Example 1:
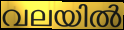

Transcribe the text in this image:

വലയിൽ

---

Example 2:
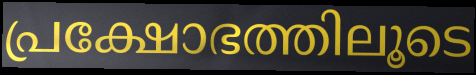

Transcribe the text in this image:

പ്രക്ഷോഭത്തിലൂടെ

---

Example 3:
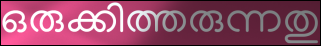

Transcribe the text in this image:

ഒരുക്കിത്തരുന്നതു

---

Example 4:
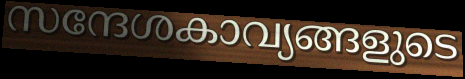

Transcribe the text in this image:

സന്ദേശകാവ്യങ്ങളുടെ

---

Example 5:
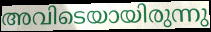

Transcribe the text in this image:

അവിടെയായിരുന്നു